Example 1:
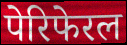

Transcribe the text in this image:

पेरिफेरल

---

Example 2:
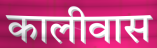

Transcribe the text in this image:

कालीवास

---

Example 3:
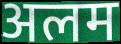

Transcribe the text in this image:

अलम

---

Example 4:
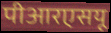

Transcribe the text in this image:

पीआरएसयू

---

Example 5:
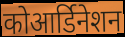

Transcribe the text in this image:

कोआर्डिनेशन